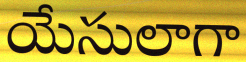
యేసులాగా